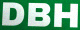
DBH